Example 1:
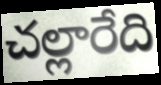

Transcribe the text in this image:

చల్లారేది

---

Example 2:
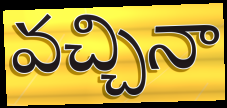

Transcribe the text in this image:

వచ్చినా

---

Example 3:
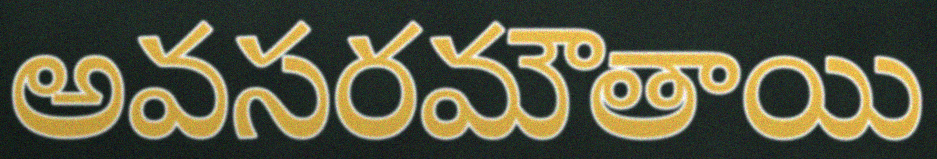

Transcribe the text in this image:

అవసరమౌతాయి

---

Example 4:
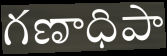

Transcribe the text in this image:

గణాధిపా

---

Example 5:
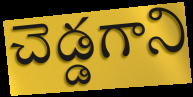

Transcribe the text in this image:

చెడ్డగాని